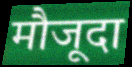
मौजूदा